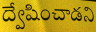
ద్వేషించాడని